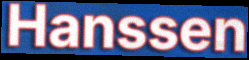
Hanssen